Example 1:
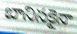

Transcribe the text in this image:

బానిసకైనా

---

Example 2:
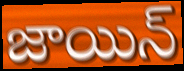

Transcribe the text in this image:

జాయిన్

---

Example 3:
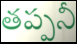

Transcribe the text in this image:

తప్పనీ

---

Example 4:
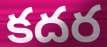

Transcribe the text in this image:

కదర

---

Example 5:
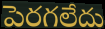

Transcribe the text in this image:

పెరగలేదు